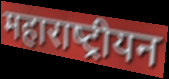
महाराष्ट्रीयन